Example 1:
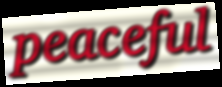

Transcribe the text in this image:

peaceful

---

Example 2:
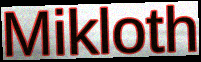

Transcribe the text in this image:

Mikloth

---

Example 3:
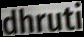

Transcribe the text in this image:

dhruti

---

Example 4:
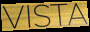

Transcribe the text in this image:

VISTA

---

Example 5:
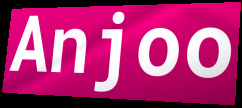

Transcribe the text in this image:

Anjoo